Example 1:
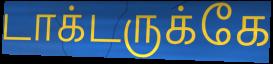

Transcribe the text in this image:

டாக்டருக்கே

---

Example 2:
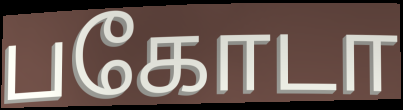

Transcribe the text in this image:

பகோடா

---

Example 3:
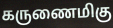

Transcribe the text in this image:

கருணைமிகு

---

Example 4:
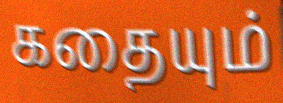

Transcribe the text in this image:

கதையும்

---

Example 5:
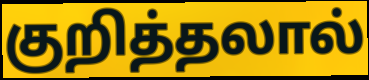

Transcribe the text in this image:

குறித்தலால்